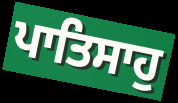
ਪਾਤਿਸਾਹੁ